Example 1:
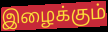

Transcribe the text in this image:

இழைக்கும்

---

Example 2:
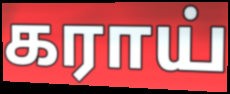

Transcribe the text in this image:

கராய்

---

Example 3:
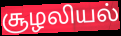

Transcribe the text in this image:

சூழலியல்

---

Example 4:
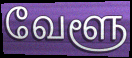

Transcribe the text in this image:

வேளூ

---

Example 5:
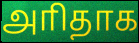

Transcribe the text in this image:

அரிதாக